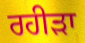
ਰਹੀੜਾ